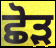
ਛੋੜ